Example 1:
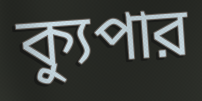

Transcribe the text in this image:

ক্যুপার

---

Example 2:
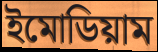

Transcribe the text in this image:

ইমোডিয়াম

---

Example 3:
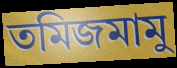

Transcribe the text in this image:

তমিজমামু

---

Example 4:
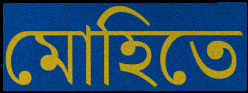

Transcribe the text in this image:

মোহিতে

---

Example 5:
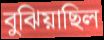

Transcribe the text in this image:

বুঝিয়াছিল